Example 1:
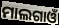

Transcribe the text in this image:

ମାଲଗାଓଁ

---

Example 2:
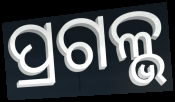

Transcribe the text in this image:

ପ୍ରଗଳ୍ଭ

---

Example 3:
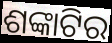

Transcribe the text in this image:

ଶଙ୍କାଟିର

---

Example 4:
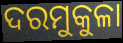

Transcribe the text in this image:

ଦରମୁକୁଳା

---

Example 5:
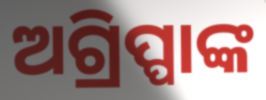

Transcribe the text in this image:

ଅଗ୍ରିପ୍ପାଙ୍କ